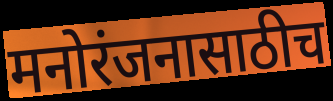
मनोरंजनासाठीच